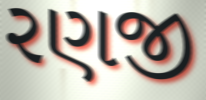
રણજી